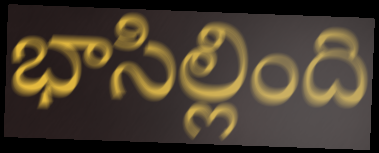
భాసిల్లింది